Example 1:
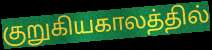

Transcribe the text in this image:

குறுகியகாலத்தில்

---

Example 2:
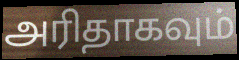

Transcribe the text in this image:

அரிதாகவும்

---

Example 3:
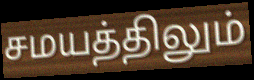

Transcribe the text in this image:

சமயத்திலும்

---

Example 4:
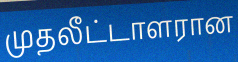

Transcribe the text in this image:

முதலீட்டாளரான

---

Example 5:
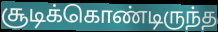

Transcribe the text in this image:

சூடிக்கொண்டிருந்த